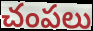
చంపలు